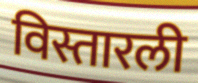
विस्तारली